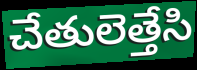
చేతులెత్తేసి